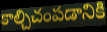
కాల్చిచంపడానికి